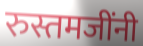
रुस्तमजींनी